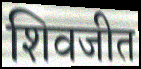
शिवजीत